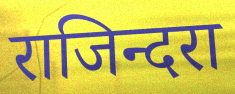
राजिन्दरा